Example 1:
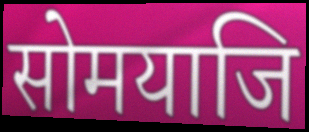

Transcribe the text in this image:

सोमयाजि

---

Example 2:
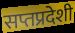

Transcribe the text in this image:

सप्तप्रदेशी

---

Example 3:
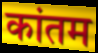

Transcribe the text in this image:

कांतम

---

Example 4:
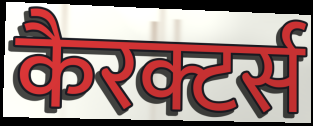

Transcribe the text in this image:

कैरक्टर्स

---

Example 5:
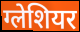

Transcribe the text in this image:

ग्लेशियर